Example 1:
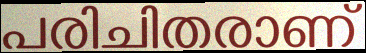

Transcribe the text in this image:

പരിചിതരാണ്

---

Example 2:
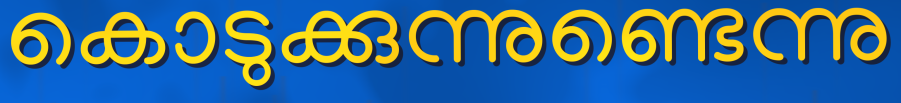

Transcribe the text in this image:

കൊടുക്കുന്നുണ്ടെന്നു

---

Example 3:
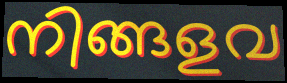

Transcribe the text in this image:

നിങ്ങളവ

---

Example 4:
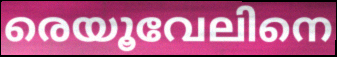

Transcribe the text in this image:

രെയൂവേലിനെ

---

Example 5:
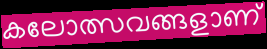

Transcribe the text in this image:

കലോത്സവങ്ങളാണ്